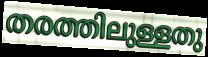
തരത്തിലുള്ളതു